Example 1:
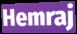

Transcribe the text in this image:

Hemraj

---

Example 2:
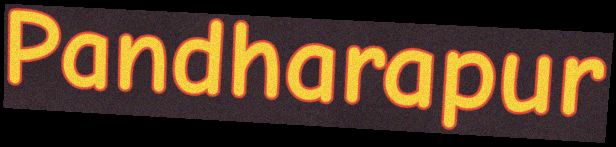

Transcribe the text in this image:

Pandharapur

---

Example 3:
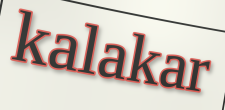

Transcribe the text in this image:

kalakar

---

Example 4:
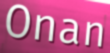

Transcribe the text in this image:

Onan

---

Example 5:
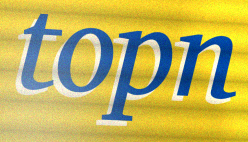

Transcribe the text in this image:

topn